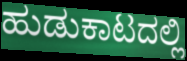
ಹುಡುಕಾಟದಲ್ಲಿ